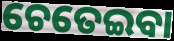
ଚେତେଇବା